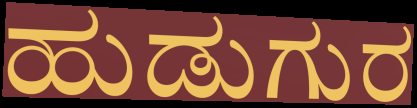
ಹುಡುಗುರ